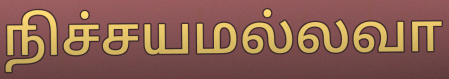
நிச்சயமல்லவா